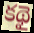
కథై